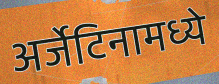
अर्जेटिनामध्ये